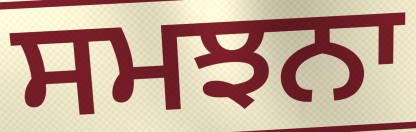
ਸਮਝਨਾ